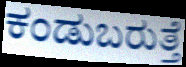
ಕಂಡುಬರುತ್ತೆ